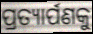
ପ୍ରତ୍ୟାର୍ପଣକୁ